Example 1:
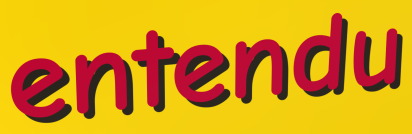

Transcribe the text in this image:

entendu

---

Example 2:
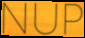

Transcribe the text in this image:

NUP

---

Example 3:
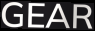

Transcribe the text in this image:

GEAR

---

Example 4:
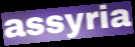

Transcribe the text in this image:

assyria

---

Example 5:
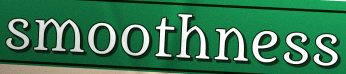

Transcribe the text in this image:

smoothness